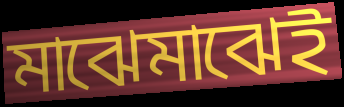
মাঝেমাঝেই